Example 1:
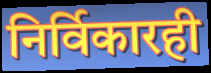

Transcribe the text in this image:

निर्विकारही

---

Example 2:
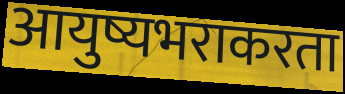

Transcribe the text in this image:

आयुष्यभराकरता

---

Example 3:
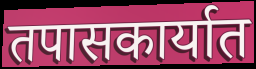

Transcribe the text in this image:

तपासकार्यात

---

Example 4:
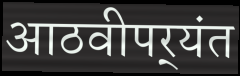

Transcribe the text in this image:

आठवीपर्यंत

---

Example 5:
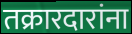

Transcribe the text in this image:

तक्रारदारांना